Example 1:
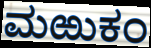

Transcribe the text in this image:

ಮಱುಕಂ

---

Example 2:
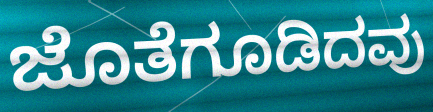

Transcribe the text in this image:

ಜೊತೆಗೂಡಿದವು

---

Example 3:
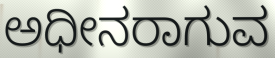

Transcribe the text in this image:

ಅಧೀನರಾಗುವ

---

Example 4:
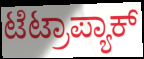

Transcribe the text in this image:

ಟೆಟ್ರಾಪ್ಯಾಕ್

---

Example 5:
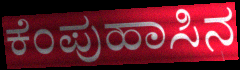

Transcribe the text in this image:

ಕೆಂಪುಹಾಸಿನ